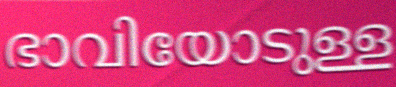
ഭാവിയോടുള്ള